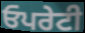
ਓਪਰੇਟੀ